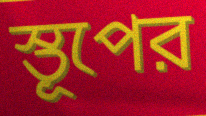
স্তূপের